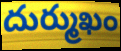
దుర్ముఖం